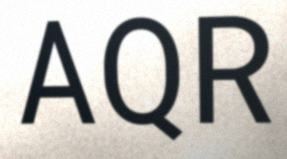
AQR